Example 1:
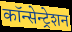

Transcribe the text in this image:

कॉन्सेन्ट्रेशन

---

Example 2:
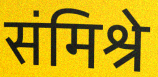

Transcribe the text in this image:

संमिश्रे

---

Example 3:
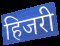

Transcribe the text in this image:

हिजरी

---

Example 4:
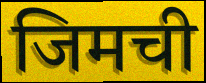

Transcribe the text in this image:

जिमची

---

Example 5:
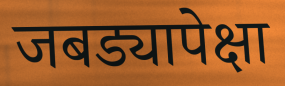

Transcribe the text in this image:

जबड्यापेक्षा